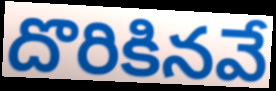
దొరికినవే